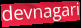
devnagari